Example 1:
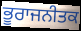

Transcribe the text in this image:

ਭੂਰਾਜਨੀਤਕ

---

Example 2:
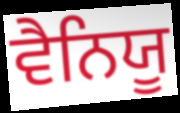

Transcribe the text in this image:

ਵੈਨਿਯੂ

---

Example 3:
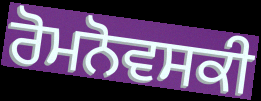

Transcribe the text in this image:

ਰੋਮਨੋਵਸਕੀ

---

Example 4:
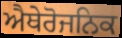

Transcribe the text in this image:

ਐਥੇਰੋਜਨਿਕ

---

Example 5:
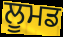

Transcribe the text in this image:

ਲੂਮਡ